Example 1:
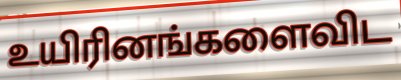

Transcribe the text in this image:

உயிரினங்களைவிட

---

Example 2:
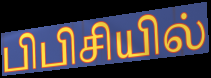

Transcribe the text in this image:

பிபிசியில்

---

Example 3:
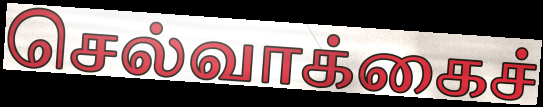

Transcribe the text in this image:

செல்வாக்கைச்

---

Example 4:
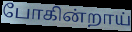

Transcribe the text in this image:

போகின்றாய்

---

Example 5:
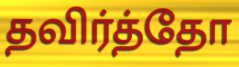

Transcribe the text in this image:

தவிர்த்தோ